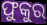
ଫୁକୁର